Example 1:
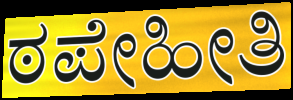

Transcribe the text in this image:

ಠಪೇಹೀತಿ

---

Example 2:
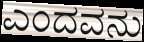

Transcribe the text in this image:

ಎಂದವನು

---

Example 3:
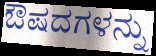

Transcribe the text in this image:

ಔಷದಗಳನ್ನು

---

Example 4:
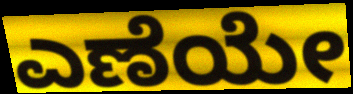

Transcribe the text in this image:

ಎಣೆಯೇ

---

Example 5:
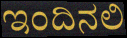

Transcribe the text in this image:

ಇಂದಿನಲಿ